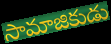
సామాజికుడు